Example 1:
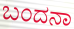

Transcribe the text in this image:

ಬಂದನಾ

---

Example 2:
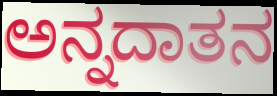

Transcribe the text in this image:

ಅನ್ನದಾತನ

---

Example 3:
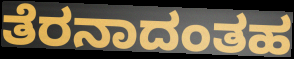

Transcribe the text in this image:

ತೆರನಾದಂತಹ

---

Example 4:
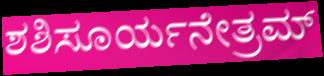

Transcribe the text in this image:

ಶಶಿಸೂರ್ಯನೇತ್ರಮ್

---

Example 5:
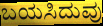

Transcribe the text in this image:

ಬಯಸಿದುವು